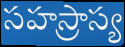
సహస్రాస్య